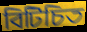
বিটিচিত